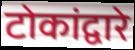
टोकांद्वारे